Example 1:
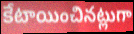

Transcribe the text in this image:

కేటాయించినట్లుగా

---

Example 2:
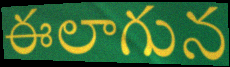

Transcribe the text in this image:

ఈలాగున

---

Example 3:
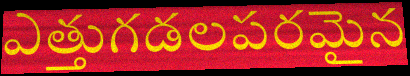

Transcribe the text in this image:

ఎత్తుగడలపరమైన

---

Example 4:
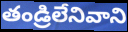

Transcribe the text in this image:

తండ్రిలేనివాని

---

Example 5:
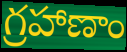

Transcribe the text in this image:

గ్రహాణాం